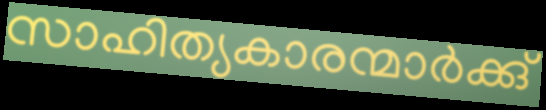
സാഹിത്യകാരന്മാർക്കു്